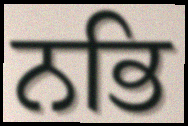
ਨਭਿ